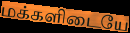
மக்களிடையே